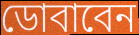
ডোবাবেন